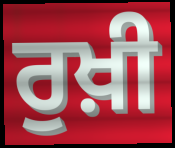
ਰੁਖ਼ੀ